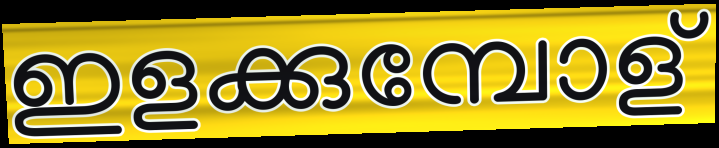
ഇളക്കുമ്പോള്